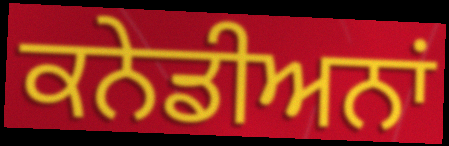
ਕਨੇਡੀਅਨਾਂ